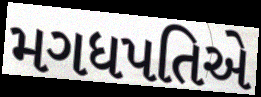
મગધપતિએ